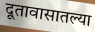
दूतावासातल्या